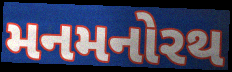
મનમનોરથ